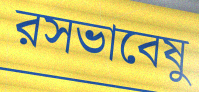
রসভাবেষু